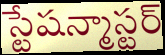
స్టేషన్మాస్టర్